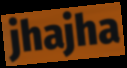
jhajha